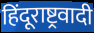
हिंदूराष्ट्रवादी